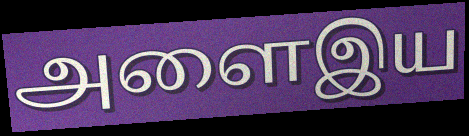
அளைஇய